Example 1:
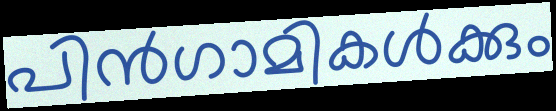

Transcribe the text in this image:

പിൻഗാമികൾക്കും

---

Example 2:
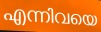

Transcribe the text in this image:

എന്നിവയെ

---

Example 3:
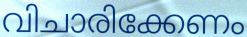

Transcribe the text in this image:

വിചാരിക്കേണം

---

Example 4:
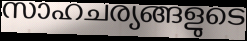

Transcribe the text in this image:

സാഹചര്യങ്ങളുടെ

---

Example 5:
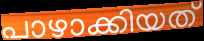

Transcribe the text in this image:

പാഴാക്കിയത്